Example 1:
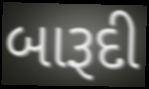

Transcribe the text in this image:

બારૂદી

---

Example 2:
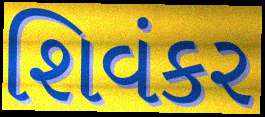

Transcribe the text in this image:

શિવંકર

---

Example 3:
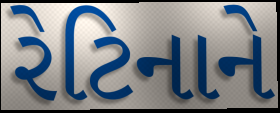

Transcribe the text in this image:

રેટિનાને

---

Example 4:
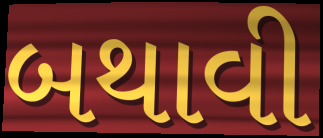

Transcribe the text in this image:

બથાવી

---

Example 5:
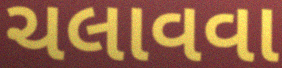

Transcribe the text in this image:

ચલાવવા